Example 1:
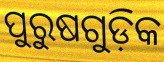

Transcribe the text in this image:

ପୁରୁଷଗୁଡ଼ିକ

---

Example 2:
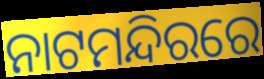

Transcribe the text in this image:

ନାଟମନ୍ଦିରରେ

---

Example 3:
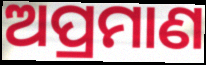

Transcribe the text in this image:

ଅପ୍ରମାଣ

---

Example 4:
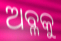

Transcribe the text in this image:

ଅବ୍ଳକୁ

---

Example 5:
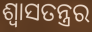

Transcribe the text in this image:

ଶ୍ଵାସତନ୍ତ୍ରର